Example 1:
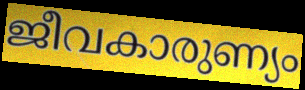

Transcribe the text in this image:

ജീവകാരുണ്യം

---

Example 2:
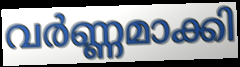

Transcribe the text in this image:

വർണ്ണമാക്കി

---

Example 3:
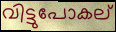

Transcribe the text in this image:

വിട്ടുപോകല്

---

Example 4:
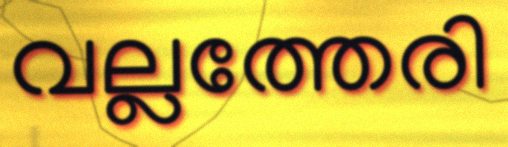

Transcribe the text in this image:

വല്ലത്തേരി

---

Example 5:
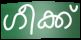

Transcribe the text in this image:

ഗീക്ക്